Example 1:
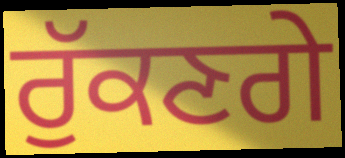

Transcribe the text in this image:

ਰੁੱਕਣਗੇ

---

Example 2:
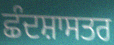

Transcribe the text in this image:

ਛੰਦਸ਼ਾਸਤਰ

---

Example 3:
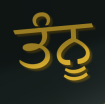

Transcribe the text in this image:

ਤੰਨੂ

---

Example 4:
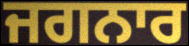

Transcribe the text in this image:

ਜਗਨਾਰ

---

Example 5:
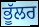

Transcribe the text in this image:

ਭੂੱਲਰ